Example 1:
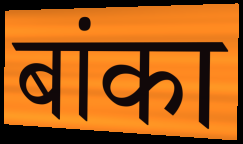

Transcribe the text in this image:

बांका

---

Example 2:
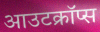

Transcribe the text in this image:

आउटक्रॉप्स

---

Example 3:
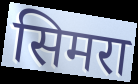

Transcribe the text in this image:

सिमरा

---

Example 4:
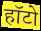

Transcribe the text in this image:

हॉटो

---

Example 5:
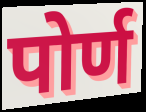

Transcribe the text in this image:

पोर्ण